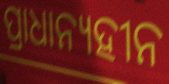
ପ୍ରାଧାନ୍ୟହୀନ